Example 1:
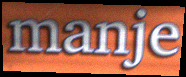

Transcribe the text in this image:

manje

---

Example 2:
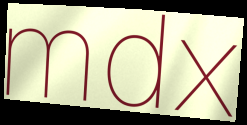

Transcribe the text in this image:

mdx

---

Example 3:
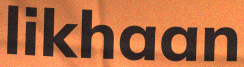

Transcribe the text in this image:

likhaan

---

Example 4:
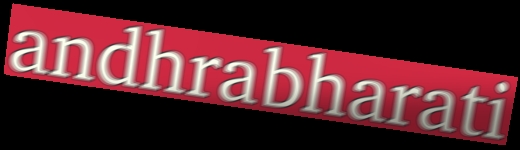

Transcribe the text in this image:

andhrabharati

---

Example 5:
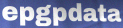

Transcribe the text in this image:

epgpdata